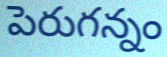
పెరుగన్నం